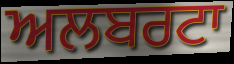
ਅਲਬਰਟਾ